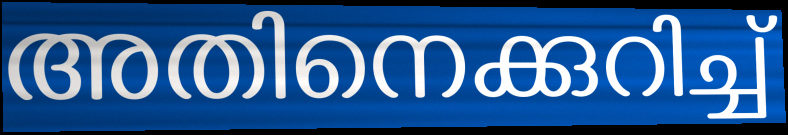
അതിനെക്കുറിച്ച്